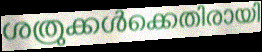
ശത്രുക്കൾക്കെതിരായി